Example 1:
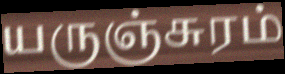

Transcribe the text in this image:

யருஞ்சுரம்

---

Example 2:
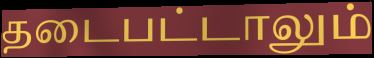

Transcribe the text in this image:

தடைபட்டாலும்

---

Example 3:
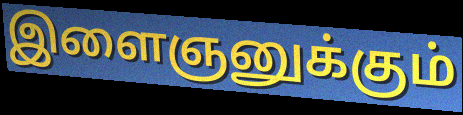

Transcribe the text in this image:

இளைஞனுக்கும்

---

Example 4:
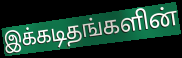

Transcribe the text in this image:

இக்கடிதங்களின்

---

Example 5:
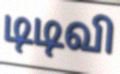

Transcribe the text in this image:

டிடிவி